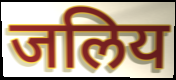
जलिय